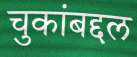
चुकांबद्दल